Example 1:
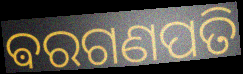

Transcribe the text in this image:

ଵରଗଣପତି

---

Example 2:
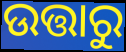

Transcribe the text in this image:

ଉତ୍ତାରୁ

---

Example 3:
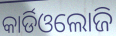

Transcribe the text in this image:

କାର୍ଡିଓଲୋଜି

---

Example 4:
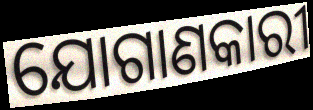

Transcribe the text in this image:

ଯୋଗାଣକାରୀ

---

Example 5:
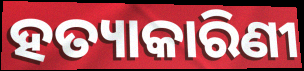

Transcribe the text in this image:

ହତ୍ୟାକାରିଣୀ